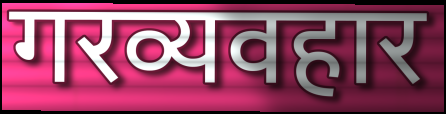
गरव्यवहार